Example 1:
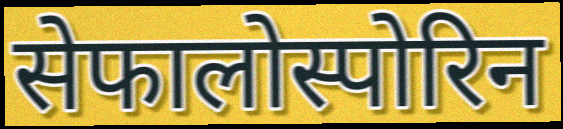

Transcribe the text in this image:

सेफालोस्पोरिन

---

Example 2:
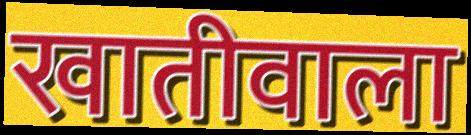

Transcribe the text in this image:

खातीवाला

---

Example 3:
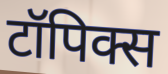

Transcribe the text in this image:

टॉपिक्स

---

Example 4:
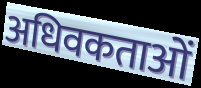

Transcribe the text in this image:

अधिवकताओं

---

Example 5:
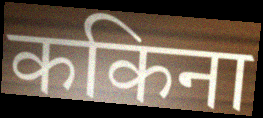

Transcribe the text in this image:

ककिना